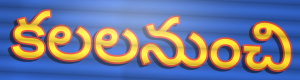
కలలనుంచి